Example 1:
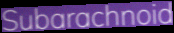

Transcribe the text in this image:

Subarachnoid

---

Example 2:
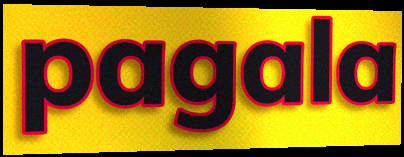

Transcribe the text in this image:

pagala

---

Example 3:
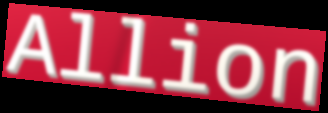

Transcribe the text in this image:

Allion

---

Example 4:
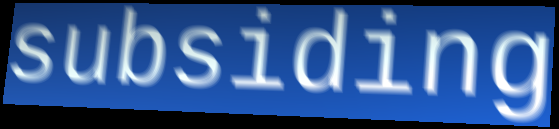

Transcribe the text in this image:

subsiding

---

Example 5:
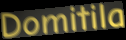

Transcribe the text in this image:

Domitila